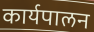
कार्यपालन